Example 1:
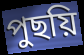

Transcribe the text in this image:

পুছয়ি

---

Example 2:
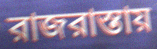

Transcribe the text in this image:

রাজরাস্তায়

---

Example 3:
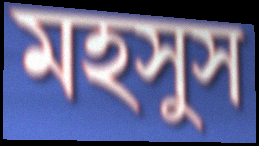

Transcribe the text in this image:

মহসুস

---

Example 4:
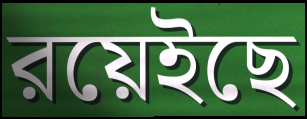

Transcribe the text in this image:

রয়েইছে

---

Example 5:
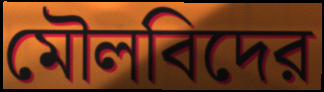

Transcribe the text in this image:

মৌলবিদের